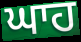
ਘਾਹ